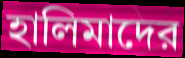
হালিমাদের